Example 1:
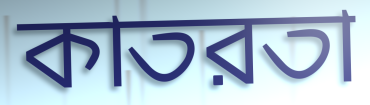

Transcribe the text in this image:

কাতরতা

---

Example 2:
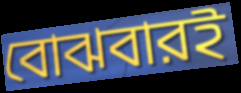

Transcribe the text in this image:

বোঝবারই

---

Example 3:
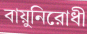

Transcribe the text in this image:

বায়ুনিরোধী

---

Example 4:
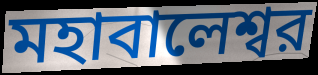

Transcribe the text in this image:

মহাবালেশ্বর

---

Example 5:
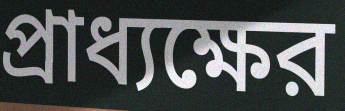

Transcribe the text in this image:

প্রাধ্যক্ষের